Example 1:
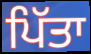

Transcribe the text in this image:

ਪਿੱਤਾ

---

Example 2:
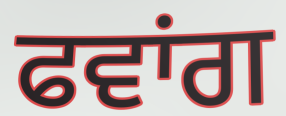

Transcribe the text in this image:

ਫਵਾਂਗ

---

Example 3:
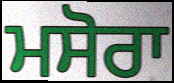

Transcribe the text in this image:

ਮਸੋਰਾ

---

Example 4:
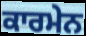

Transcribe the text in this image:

ਕਾਰਮੇਨ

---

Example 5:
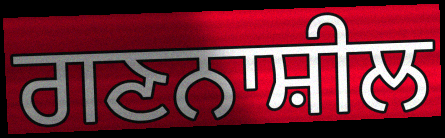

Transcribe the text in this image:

ਗਣਨਾਸ਼ੀਲ